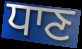
ਧਾਣ